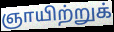
ஞாயிற்றுக்